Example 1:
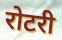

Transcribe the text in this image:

रोटरी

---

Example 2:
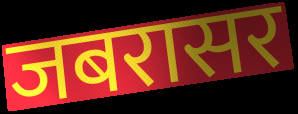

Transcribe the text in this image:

जबरासर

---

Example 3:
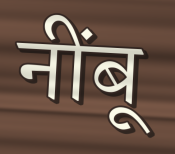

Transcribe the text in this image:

नींबू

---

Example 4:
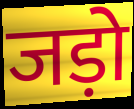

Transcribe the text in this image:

जड़ो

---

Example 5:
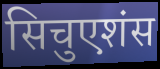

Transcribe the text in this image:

सिचुएशंस